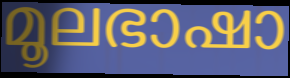
മൂലഭാഷാ